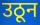
उठून